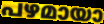
പഴമായാ